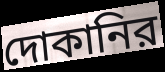
দোকানির